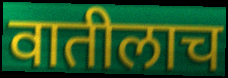
वातीलाच